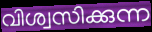
വിശ്വസിക്കുന്ന